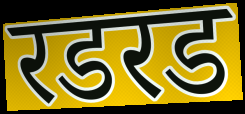
रडरड